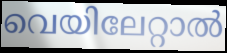
വെയിലേറ്റാൽ